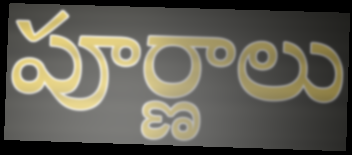
పూర్ణాలు